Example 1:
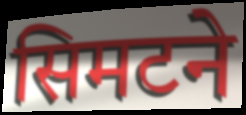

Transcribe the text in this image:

सिमटने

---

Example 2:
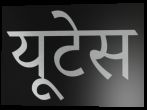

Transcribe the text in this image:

यूटेस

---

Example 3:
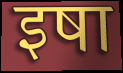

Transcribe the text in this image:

इषा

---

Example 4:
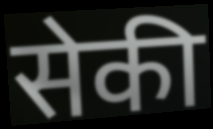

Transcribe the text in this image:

सेकी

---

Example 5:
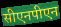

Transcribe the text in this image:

सीएनपीएन